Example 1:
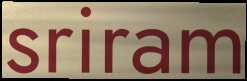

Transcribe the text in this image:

sriram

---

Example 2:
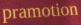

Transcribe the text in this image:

pramotion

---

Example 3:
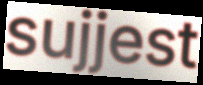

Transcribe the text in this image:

sujjest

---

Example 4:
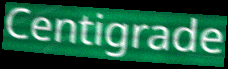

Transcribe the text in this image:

Centigrade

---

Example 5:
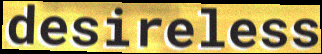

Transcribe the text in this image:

desireless